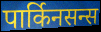
पार्किनसन्स